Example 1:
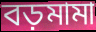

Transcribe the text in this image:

বড়মামা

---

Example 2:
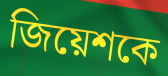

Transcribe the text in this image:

জিয়েশকে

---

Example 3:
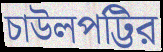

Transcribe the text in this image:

চাউলপট্টির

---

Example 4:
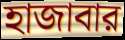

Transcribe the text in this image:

হাজাবার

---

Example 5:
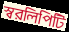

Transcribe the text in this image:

স্বরলিপিটি